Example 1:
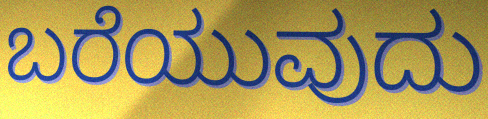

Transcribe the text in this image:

ಬರೆಯುವುದು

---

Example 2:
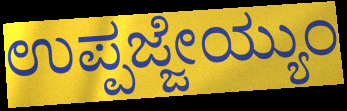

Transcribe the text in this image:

ಉಪ್ಪಜ್ಜೇಯ್ಯುಂ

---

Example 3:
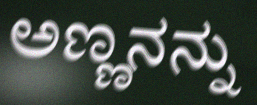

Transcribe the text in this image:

ಅಣ್ಣನನ್ನು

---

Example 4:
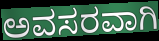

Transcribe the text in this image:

ಅವಸರವಾಗಿ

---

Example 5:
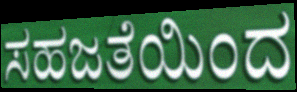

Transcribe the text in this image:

ಸಹಜತೆಯಿಂದ